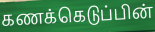
கணக்கெடுப்பின்